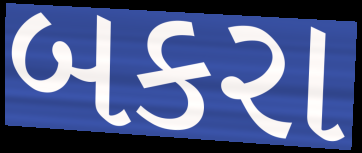
બકરા